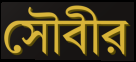
সৌবীর